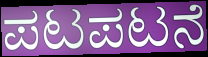
ಪಟಪಟನೆ